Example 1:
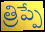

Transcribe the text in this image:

త్రిప్పే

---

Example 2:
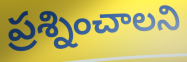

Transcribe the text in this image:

ప్రశ్నించాలని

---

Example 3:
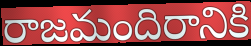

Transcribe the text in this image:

రాజమందిరానికి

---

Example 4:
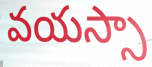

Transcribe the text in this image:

వయస్సా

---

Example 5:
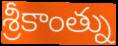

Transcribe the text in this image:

శ్రీకాంత్ను